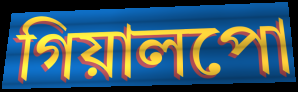
গিয়ালপো